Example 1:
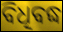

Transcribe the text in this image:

ବିଧିବଦ୍ଧ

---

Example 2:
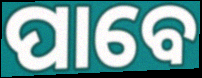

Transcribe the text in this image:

ପାବେ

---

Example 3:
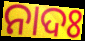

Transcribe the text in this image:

ନାଦଃ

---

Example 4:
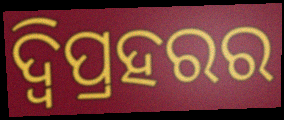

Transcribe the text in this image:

ଦ୍ୱିପ୍ରହରର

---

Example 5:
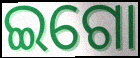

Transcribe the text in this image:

ଇଗୋ